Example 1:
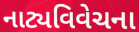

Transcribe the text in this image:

નાટ્યવિવેચના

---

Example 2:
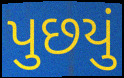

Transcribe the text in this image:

પુછયું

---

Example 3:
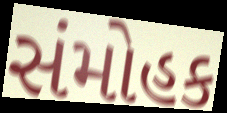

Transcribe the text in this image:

સંમોહક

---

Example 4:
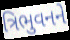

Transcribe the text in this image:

ત્રિભુવનને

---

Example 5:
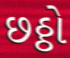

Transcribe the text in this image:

છઠ્ઠો